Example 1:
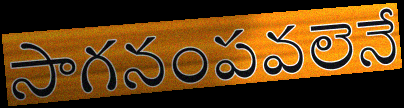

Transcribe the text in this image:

సాగనంపవలెనే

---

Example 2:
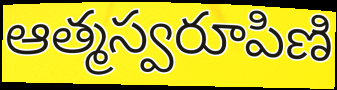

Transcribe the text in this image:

ఆత్మస్వరూపిణి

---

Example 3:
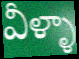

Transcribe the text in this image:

వీళ్ళా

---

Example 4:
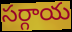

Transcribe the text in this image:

సర్గాయ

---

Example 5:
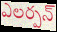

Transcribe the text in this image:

ఎలర్పన్